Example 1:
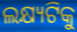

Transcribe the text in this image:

ଲକ୍ଷ୍ୟଟିକୁ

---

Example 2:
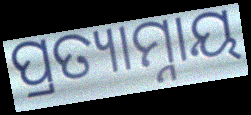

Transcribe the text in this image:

ପ୍ରତ୍ୟାମ୍ନାୟ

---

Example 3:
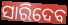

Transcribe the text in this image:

ସାରିଦେବ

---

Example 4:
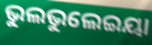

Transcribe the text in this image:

ଭୁଲଭୁଲେଇୟା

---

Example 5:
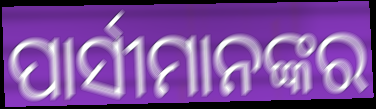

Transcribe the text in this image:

ପାର୍ସୀମାନଙ୍କର